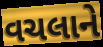
વચલાને